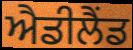
ਐਡੀਲੈਂਡ